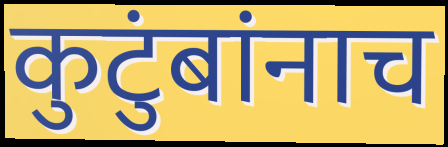
कुटुंबांनाच